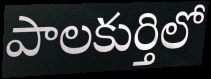
పాలకుర్తిలో